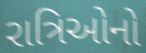
રાત્રિઓનો